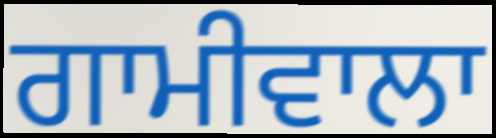
ਗਾਮੀਵਾਲਾ